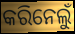
କରିନେଲୁଁ